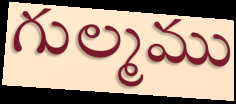
గుల్మము